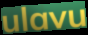
ulavu